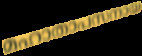
മഹാതാപസനായ